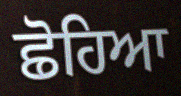
ਛੋਹਿਆ